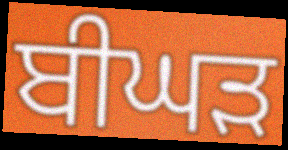
ਬੀਘੜ